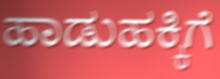
ಹಾಡುಹಕ್ಕಿಗೆ